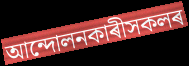
আন্দোলনকাৰীসকলৰ